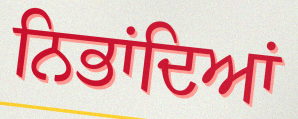
ਨਿਭਾਂਦਿਆਂ